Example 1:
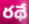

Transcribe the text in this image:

రథే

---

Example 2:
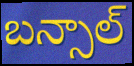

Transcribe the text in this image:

బన్సాల్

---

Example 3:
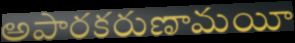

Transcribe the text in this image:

అపారకరుణామయీ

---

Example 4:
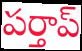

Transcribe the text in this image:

పర్తాప్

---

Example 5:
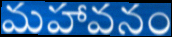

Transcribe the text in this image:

మహావనం